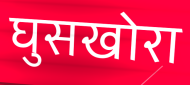
घुसखोरा